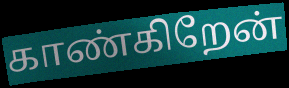
காண்கிறேன்